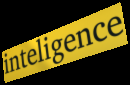
inteligence